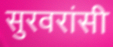
सुरवरांसी